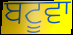
ਬਟੂਵਾ